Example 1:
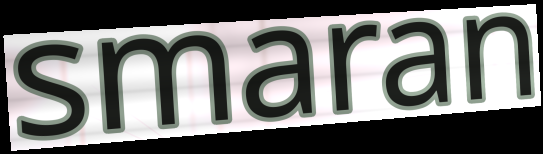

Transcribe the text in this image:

smaran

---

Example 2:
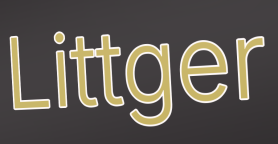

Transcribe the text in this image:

Littger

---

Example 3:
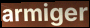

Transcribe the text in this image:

armiger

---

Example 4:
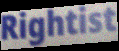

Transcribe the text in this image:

Rightist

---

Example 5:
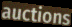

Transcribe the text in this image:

auctions